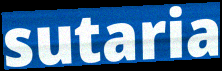
sutaria